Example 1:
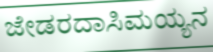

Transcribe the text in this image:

ಜೇಡರದಾಸಿಮಯ್ಯನ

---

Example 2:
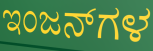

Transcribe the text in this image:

ಇಂಜನ್‌ಗಳ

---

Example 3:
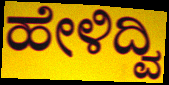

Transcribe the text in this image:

ಹೇಳಿದ್ವಿ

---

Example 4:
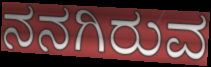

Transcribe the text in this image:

ನನಗಿರುವ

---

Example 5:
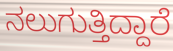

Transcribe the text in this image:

ನಲುಗುತ್ತಿದ್ದಾರೆ